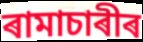
ৰামাচাৰীৰ